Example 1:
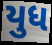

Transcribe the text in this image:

યુધ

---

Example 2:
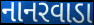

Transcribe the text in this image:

નાનરવાડા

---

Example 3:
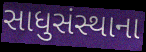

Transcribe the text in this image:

સાધુસંસ્થાના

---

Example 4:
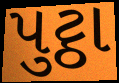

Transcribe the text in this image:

પુટ્ઠા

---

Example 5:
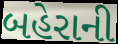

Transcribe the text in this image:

બહેરાની